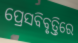
ପ୍ରେସବିବୃତ୍ତିରେ